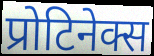
प्रोटिनेक्स